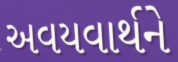
અવયવાર્થને